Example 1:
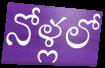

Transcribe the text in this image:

నోళ్లలో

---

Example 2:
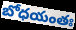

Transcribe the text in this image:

బోధయంతః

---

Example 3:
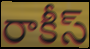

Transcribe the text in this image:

రాకీస్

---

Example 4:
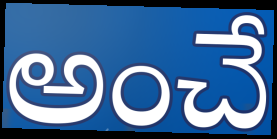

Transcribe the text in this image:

అంచే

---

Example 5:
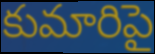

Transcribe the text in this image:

కుమారిపై